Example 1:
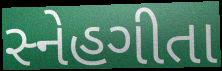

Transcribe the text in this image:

સ્નેહગીતા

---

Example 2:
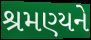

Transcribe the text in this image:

શ્રમણ્યને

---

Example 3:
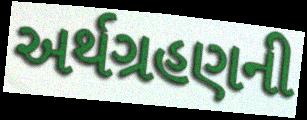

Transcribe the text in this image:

અર્થગ્રહણની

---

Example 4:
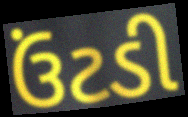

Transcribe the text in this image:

ઉંટડી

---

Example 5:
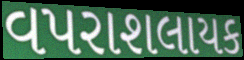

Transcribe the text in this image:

વપરાશલાયક